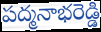
పద్మనాభరెడ్డి